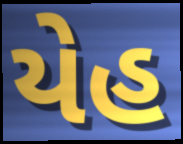
યેહ